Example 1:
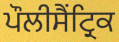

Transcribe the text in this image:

ਪੌਲੀਸੈਂਟ੍ਰਿਕ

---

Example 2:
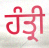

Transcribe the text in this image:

ਹੰਤ੍ਰੀ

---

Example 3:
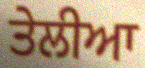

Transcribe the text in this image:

ਤੇਲੀਆ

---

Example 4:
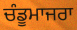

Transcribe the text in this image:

ਚੰਡੂਮਾਜਰਾ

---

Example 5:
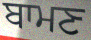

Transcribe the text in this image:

ਬਾਮਣ